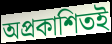
অপ্রকাশিতই